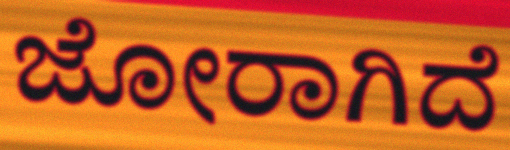
ಜೋರಾಗಿದೆ